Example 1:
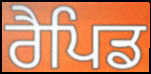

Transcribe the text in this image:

ਰੈਪਿਡ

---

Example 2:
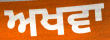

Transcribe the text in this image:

ਅਖਵਾ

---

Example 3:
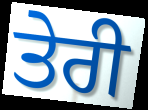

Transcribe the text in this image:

ਤੇਰੀ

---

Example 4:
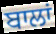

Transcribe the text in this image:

ਬਾਲਾਂ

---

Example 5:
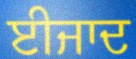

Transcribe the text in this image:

ਈਜਾਦ